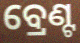
ବ୍ରେଣ୍ଟ